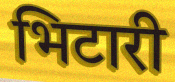
भिटारी